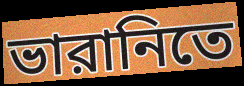
ভারানিতে